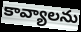
కావ్యాలను